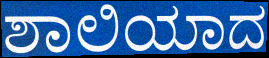
ಶಾಲಿಯಾದ